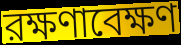
রক্ষণাবেক্ষণ